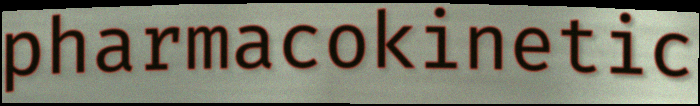
pharmacokinetic